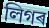
লিগৰ